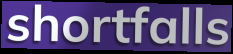
shortfalls